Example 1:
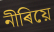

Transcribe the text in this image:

নীৰিয়ে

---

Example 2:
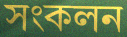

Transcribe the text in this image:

সংকলন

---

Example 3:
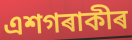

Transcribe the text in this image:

এশগৰাকীৰ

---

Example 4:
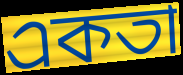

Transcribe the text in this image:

একতা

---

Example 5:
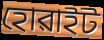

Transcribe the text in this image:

হোৱাইট